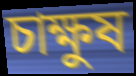
চাক্ষুষ